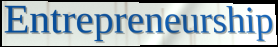
Entrepreneurship